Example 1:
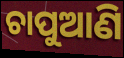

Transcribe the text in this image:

ଚାପୁଆଣି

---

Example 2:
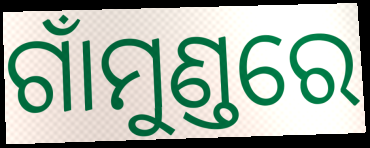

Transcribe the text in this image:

ଗାଁମୁଣ୍ଡରେ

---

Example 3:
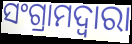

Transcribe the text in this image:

ସଂଗ୍ରାମଦ୍ଵାରା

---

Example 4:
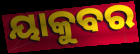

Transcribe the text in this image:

ୟାକୁବର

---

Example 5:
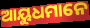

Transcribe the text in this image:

ଆୟୁଧମାନେ